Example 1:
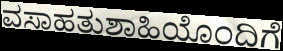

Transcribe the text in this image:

ವಸಾಹತುಶಾಹಿಯೊಂದಿಗೆ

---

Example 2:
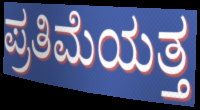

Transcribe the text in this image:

ಪ್ರತಿಮೆಯತ್ತ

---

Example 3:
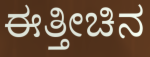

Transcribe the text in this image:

ಈತ್ತೀಚಿನ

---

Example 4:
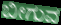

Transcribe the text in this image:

ಬೀಗುವ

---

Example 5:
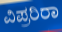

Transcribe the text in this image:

ವಿಪ್ರರಿರಾ